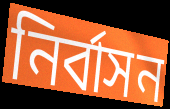
নিৰ্বাসন